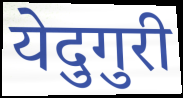
येदुगुरी